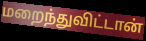
மறைந்துவிட்டான்